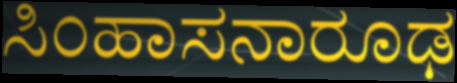
ಸಿಂಹಾಸನಾರೂಢ